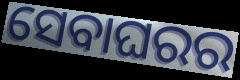
ସେବାଘରର